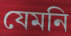
যেমনি